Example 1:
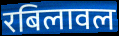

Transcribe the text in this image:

रबिलावल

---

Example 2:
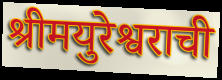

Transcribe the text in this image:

श्रीमयुरेश्वराची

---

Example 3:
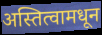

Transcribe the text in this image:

अस्तित्वामधून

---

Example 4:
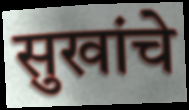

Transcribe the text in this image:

सुखांचे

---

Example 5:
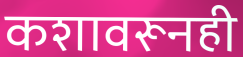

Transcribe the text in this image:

कशावरूनही